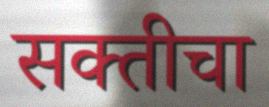
सक्तीचा